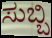
ಸುಬ್ಬಿ